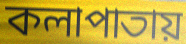
কলাপাতায়